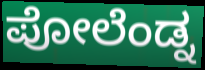
ಪೋಲೆಂಡ್ನ